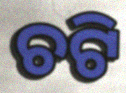
ଚଟି